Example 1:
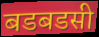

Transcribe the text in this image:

बडबडसी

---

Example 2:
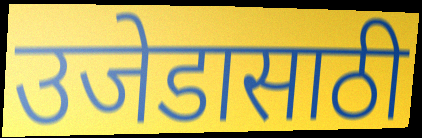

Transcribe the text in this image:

उजेडासाठी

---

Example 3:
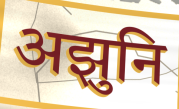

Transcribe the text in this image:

अझुनि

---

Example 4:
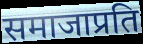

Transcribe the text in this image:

समाजाप्रति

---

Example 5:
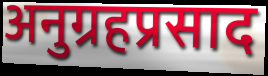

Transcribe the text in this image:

अनुग्रहप्रसाद